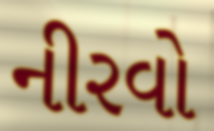
નીરવો